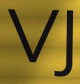
VJ